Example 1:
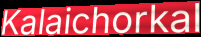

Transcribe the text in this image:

Kalaichorkal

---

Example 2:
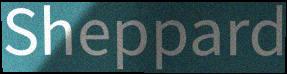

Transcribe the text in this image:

Sheppard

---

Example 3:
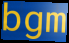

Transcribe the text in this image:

bgm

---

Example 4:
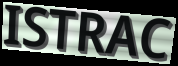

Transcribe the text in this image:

ISTRAC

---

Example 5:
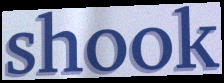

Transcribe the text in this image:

shook